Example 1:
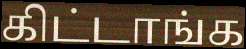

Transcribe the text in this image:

கிட்டாங்க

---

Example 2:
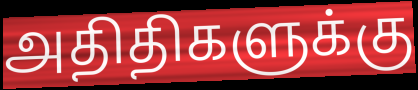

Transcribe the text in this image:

அதிதிகளுக்கு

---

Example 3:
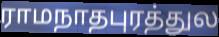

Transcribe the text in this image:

ராமநாதபுரத்துல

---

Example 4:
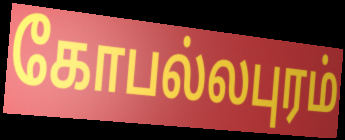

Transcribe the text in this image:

கோபல்லபுரம்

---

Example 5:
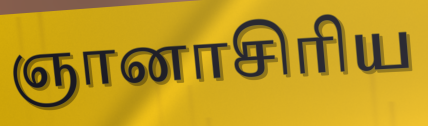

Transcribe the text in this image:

ஞானாசிரிய